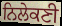
ਨਿਲੇਕਣੀ